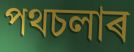
পথচলাৰ